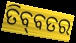
ତିବ୍‌ବତର